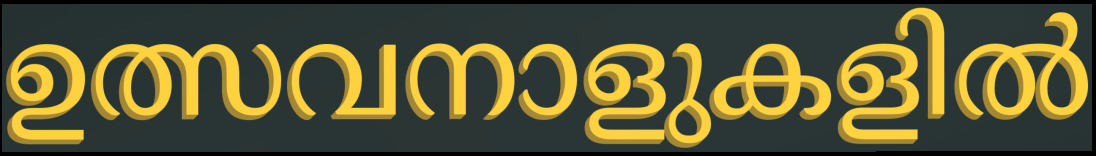
ഉത്സവനാളുകളിൽ